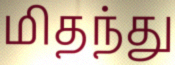
மிதந்து